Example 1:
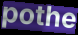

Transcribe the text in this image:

pothe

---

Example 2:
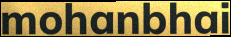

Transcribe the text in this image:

mohanbhai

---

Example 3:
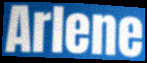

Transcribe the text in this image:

Arlene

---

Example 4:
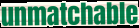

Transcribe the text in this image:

unmatchable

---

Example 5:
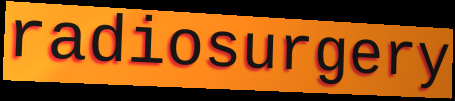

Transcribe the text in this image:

radiosurgery